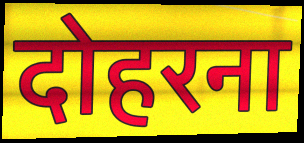
दोहरना